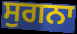
ਸੁਗਨਾ